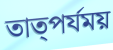
তাত্পর্যময়